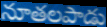
నూతలపాడు